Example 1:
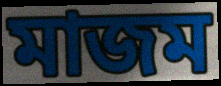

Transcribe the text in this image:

মাজম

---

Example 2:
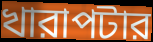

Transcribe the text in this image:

খারাপটার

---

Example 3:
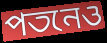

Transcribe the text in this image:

পতনেও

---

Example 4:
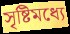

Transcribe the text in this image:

সৃষ্টিমধ্যে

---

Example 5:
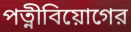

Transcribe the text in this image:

পত্নীবিয়োগের